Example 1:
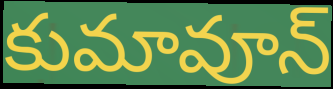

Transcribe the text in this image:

కుమావూన్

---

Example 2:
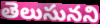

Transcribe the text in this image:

తెలుసునని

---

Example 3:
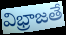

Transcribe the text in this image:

విభ్రాజతే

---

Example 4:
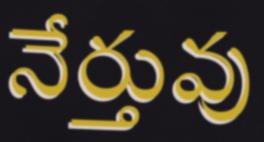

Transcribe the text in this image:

నేర్తువు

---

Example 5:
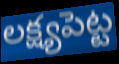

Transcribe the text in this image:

లక్ష్యపెట్ట